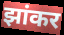
झांकर